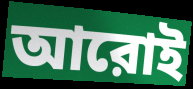
আরোই